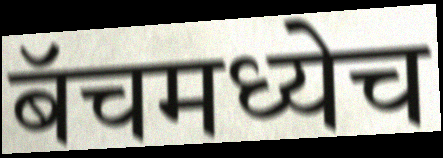
बॅचमध्येच